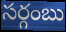
సర్గంబు